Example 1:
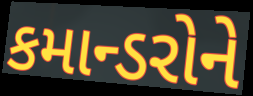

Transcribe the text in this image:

કમાન્ડરોને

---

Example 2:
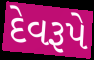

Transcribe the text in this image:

દેવરૂપે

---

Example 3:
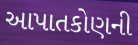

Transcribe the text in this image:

આપાતકોણની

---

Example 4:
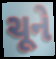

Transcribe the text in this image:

ચૂને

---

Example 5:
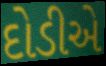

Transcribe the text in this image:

દોડીએ